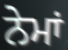
ਨੇਮਾਂ